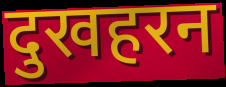
दुखहरन